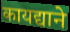
कायद्याने